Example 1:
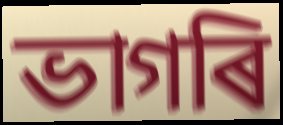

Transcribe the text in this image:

ভাগৰি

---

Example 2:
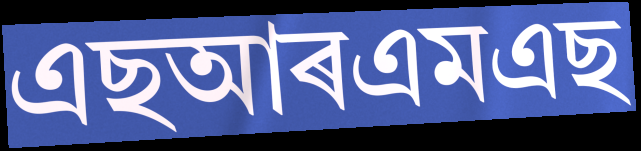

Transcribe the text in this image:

এছআৰএমএছ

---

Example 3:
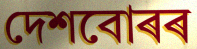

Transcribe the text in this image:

দেশবোৰৰ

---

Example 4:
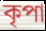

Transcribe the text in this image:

কৃপা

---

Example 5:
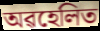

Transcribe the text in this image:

অৱহেলিত